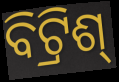
ବିଟ୍ରିଶ୍